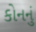
કોનનું